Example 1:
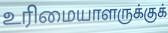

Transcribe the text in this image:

உரிமையாளருக்குக்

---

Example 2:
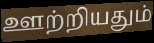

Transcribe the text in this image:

ஊற்றியதும்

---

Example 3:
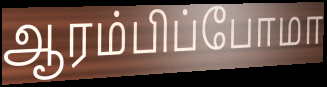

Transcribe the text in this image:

ஆரம்பிப்போமா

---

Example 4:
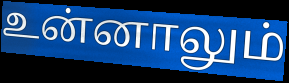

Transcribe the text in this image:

உன்னாலும்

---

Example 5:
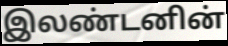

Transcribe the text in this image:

இலண்டனின்